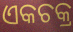
ଏକଚକ୍ର